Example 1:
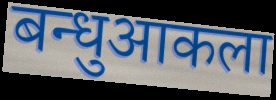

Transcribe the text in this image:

बन्धुआकला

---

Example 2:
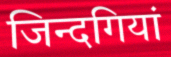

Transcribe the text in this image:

जिन्दगियां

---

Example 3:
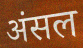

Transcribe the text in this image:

अंसल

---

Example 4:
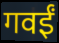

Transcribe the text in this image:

गवईं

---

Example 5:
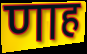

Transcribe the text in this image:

णाह